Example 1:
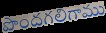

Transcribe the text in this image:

పొందగలిగాము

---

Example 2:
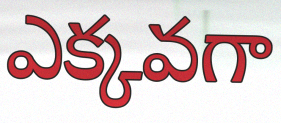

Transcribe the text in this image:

ఎక్కవగా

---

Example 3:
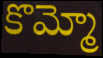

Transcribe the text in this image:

కొమ్మో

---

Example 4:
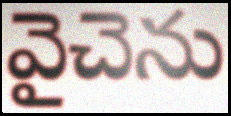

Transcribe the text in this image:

వైచెను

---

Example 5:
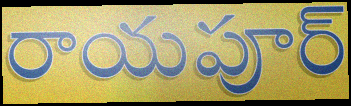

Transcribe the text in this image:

రాయపూర్